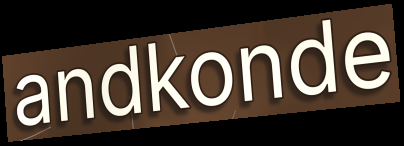
andkonde